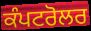
ਕੰਪਟਰੋਲਰ